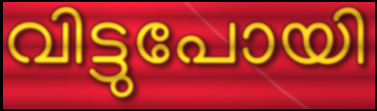
വിട്ടുപോയി